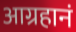
आग्रहानं